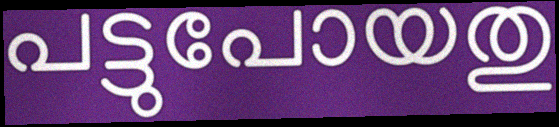
പട്ടുപോയതു